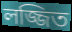
লজ্জিত